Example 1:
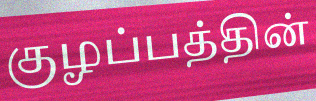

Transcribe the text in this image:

குழப்பத்தின்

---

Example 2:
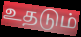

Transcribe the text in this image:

உதடும்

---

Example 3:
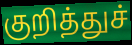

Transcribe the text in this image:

குறித்துச்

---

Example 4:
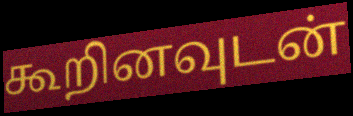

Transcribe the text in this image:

கூறினவுடன்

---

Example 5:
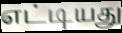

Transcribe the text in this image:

எட்டியது